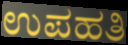
ಉಪಹತಿ